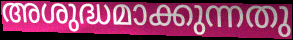
അശുദ്ധമാക്കുന്നതു